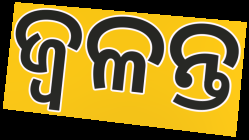
ଜ୍ବଳନ୍ତ